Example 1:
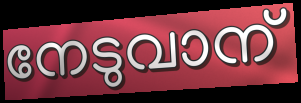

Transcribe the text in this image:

നേടുവാന്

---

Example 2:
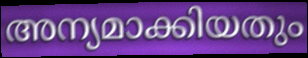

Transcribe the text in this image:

അന്യമാക്കിയതും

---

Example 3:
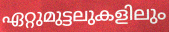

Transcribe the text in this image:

ഏറ്റുമുട്ടലുകളിലും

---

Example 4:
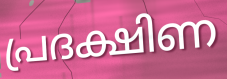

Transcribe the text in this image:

പ്രദക്ഷിണ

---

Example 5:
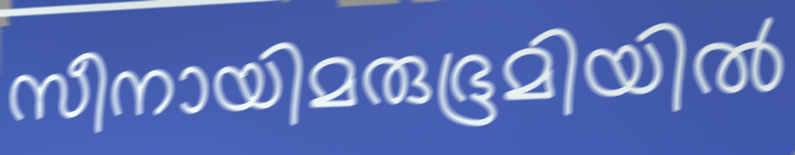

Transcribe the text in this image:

സീനായിമരുഭൂമിയിൽ